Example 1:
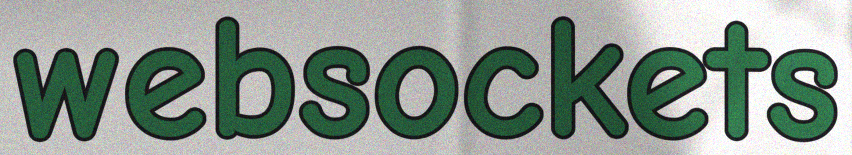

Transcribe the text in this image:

websockets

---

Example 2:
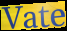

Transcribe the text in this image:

Vate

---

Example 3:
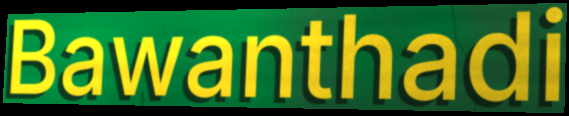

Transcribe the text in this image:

Bawanthadi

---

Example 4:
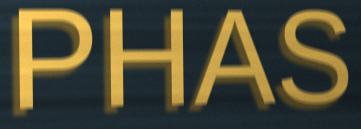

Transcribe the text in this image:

PHAS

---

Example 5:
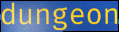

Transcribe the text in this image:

dungeon